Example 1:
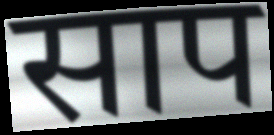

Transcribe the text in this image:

साप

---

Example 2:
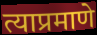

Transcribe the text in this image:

त्याप्रमाणे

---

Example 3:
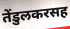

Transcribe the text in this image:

तेंडुलकरसह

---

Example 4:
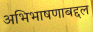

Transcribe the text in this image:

अभिभाषणाबद्दल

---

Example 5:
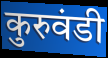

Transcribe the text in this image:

कुरुवंडी